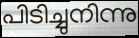
പിടിച്ചുനിന്നു